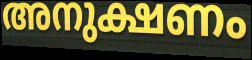
അനുക്ഷണം